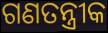
ଗଣତନ୍ତ୍ରୀକ